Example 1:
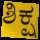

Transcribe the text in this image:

ಶಿಕ್ಷ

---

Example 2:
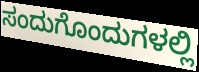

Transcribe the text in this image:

ಸಂದುಗೊಂದುಗಳಲ್ಲಿ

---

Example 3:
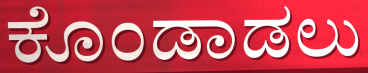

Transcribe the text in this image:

ಕೊಂಡಾಡಲು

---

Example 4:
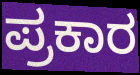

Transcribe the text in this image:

ಪ್ರಕಾರ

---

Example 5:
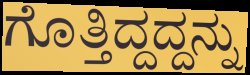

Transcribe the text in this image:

ಗೊತ್ತಿದ್ದದ್ದನ್ನು